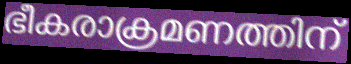
ഭീകരാക്രമണത്തിന്